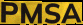
PMSA